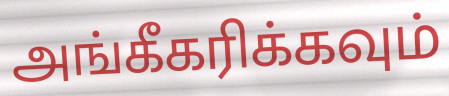
அங்கீகரிக்கவும்